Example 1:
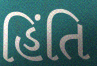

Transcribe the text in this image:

હિંતિ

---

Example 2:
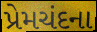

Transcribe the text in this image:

પ્રેમચંદના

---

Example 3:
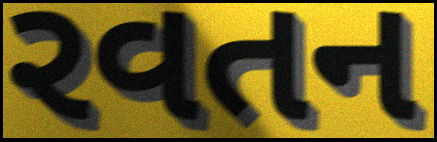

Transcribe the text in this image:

રવતન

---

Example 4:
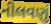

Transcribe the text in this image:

નીલવણું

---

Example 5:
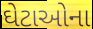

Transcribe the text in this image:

ઘેટાઓના